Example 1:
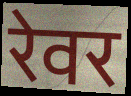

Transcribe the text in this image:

रेवर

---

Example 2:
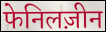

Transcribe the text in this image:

फेनिलज़ीन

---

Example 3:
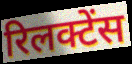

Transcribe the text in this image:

रिलक्टेंस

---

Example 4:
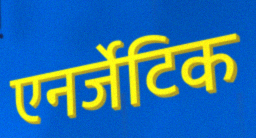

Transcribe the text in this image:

एनर्जेटिक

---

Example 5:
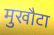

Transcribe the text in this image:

मुखौटा